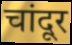
चांदूर